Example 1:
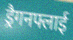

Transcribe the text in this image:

ड्रैगनफ्लाई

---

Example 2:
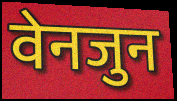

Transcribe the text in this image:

वेनजुन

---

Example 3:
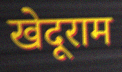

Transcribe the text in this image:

खेदूराम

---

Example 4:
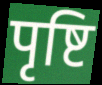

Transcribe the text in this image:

पृष्टि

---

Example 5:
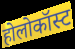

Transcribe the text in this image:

होलोकॉस्ट